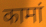
कामां